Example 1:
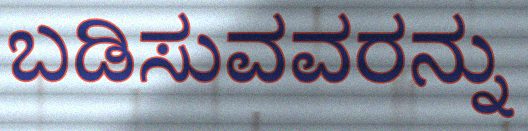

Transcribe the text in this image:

ಬಡಿಸುವವರನ್ನು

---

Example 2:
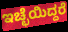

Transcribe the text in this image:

ಇಚ್ಛೆಯಿದ್ದರೆ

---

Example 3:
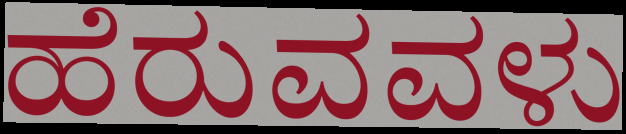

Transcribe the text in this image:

ಹೆರುವವಳು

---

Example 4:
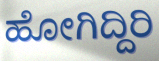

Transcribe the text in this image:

ಹೋಗಿದ್ದಿರಿ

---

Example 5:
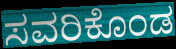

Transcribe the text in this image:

ಸವರಿಕೊಂಡ